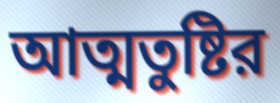
আত্মতুষ্টির